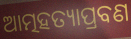
ଆତ୍ମହତ୍ୟାପ୍ରବଣ